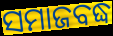
ସମାଜବଦ୍ଧ